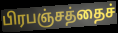
பிரபஞ்சத்தைச்